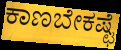
ಕಾಣಬೇಕಷ್ಟೆ